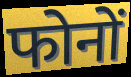
फोनों